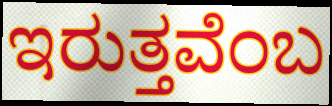
ಇರುತ್ತವೆಂಬ